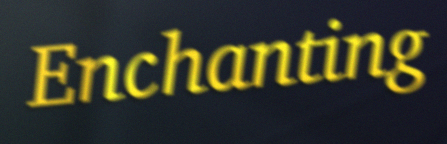
Enchanting